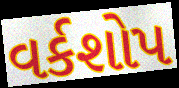
વર્કશોપ